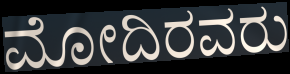
ಮೋದಿರವರು